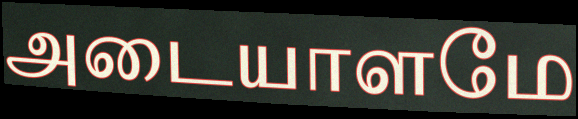
அடையாளமே